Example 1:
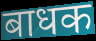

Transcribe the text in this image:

बाधक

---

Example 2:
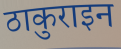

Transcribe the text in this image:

ठाकुराइन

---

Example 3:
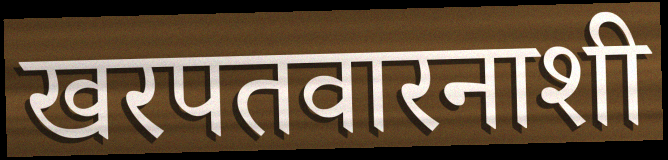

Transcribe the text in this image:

खरपतवारनाशी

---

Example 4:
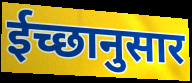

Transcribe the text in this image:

ईच्छानुसार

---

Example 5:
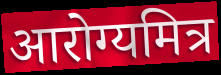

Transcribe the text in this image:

आरोग्यमित्र